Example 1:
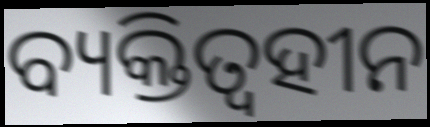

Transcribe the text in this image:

ବ୍ୟକ୍ତିତ୍ୱହୀନ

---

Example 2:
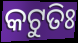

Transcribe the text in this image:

କଟୁତିଃ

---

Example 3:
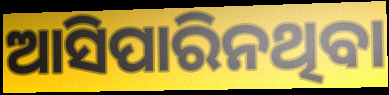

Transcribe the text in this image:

ଆସିପାରିନଥିବା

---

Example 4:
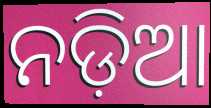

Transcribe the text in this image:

ନଡ଼ିଆ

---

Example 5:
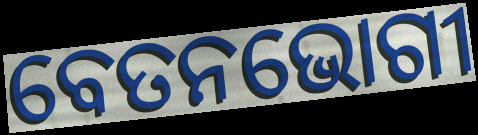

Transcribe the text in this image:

ବେତନଭୋଗୀ